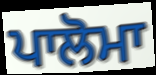
ਪਾਲੋਮਾ